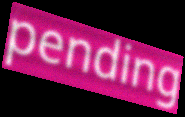
pending